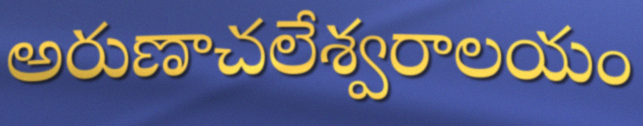
అరుణాచలేశ్వరాలయం